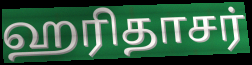
ஹரிதாசர்